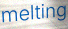
melting